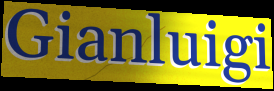
Gianluigi